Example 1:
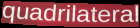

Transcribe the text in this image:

quadrilateral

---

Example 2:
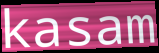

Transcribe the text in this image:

kasam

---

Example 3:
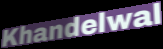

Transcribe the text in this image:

Khandelwal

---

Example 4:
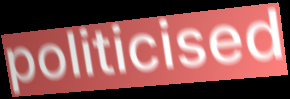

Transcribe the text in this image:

politicised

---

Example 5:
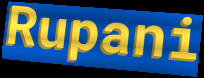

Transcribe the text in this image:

Rupani